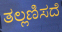
ತಲ್ಲಣಿಸದೆ